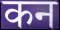
कन